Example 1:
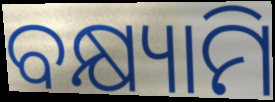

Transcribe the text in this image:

ବକ୍ଷ୍ୟାମି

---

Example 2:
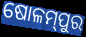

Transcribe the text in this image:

ଷୋଳମ୍‌ପୁର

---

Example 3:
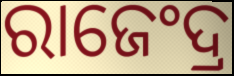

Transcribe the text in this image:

ରାଜେଂଦ୍ର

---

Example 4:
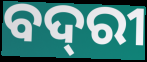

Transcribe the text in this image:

ବଦ୍‌ରୀ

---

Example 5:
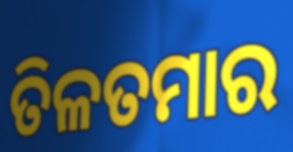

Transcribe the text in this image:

ତିଳତମାର